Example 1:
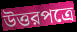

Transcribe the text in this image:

উত্তরপত্রে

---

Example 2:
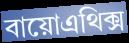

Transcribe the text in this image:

বায়োএথিক্স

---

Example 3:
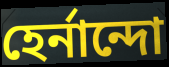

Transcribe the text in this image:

হের্নান্দো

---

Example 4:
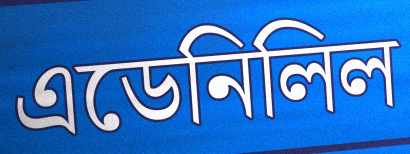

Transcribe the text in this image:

এডেনিলিল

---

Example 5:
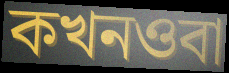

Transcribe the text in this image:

কখনওবা